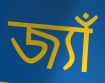
জ্যাঁ